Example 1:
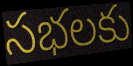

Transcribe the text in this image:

సభలకు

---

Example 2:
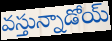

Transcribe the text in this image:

వస్తున్నాడోయ్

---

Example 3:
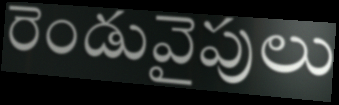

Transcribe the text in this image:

రెండువైపులు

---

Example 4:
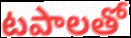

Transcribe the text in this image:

టపాలతో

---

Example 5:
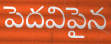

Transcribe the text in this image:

పెదవిపైన